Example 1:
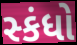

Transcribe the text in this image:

સ્કંધો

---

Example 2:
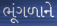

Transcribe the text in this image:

ભૂંગળાને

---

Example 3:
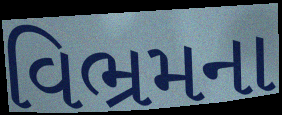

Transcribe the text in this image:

વિભ્રમના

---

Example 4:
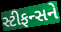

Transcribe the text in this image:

સ્ટીફન્સને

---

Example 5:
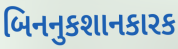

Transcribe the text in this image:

બિનનુકશાનકારક